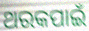
ଥରକପାଇଁ